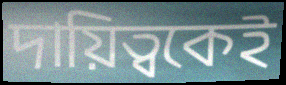
দায়িত্বকেই